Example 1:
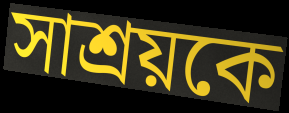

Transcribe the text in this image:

সাশ্রয়কে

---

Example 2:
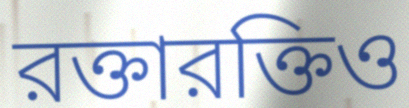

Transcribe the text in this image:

রক্তারক্তিও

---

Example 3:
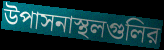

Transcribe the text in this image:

উপাসনাস্থলগুলির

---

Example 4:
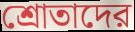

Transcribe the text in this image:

শ্রোতাদের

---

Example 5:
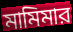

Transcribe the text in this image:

মামিমার